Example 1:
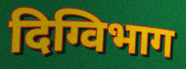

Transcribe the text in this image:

दिग्विभाग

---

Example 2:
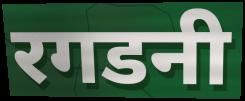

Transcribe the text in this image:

रगडनी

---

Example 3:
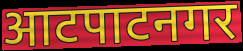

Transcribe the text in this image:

आटपाटनगर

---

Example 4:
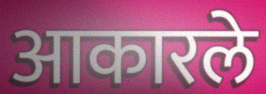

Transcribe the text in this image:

आकारले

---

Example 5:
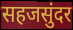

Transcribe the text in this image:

सहजसुंदर